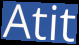
Atit